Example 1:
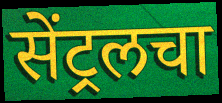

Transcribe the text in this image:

सेंट्रलचा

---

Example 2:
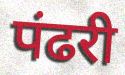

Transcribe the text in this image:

पंढरी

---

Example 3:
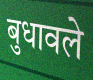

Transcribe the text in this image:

बुधावले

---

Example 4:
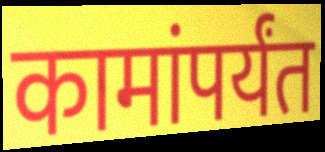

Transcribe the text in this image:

कामांपर्यंत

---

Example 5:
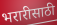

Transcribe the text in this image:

भरारीसाठी